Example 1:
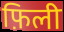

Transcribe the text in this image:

फ़िली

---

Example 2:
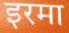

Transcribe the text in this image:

इरमा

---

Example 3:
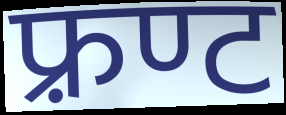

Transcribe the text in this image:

फ़्रण्ट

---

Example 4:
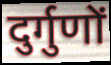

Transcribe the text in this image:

दुर्गुणों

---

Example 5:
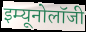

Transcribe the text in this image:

इम्यूनोलॉजी